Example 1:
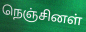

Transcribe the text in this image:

நெஞ்சினள்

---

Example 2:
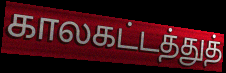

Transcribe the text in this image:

காலகட்டத்துத்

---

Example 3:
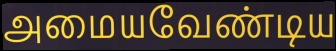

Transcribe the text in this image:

அமையவேண்டிய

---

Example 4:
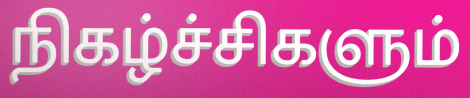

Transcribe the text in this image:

நிகழ்ச்சிகளும்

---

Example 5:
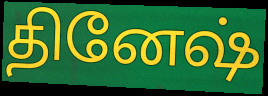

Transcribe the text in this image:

தினேஷ்